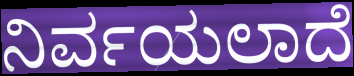
ನಿರ್ವಯಲಾದೆ